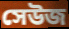
সেউজ